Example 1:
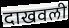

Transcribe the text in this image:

दाखवली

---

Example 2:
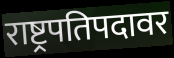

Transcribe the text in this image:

राष्ट्रपतिपदावर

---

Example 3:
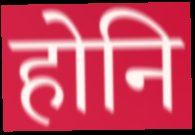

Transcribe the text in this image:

होनि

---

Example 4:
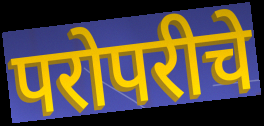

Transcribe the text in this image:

परोपरीचे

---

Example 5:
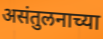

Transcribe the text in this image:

असंतुलनाच्या